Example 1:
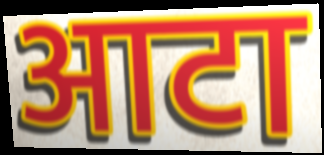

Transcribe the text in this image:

आटा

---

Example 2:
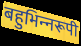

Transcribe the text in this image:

बहुभिन्नरूपी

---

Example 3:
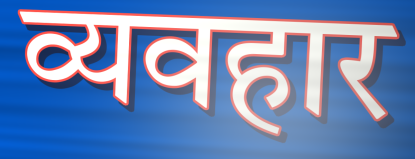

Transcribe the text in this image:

व्यवहार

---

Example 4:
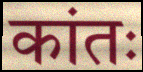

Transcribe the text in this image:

कांतः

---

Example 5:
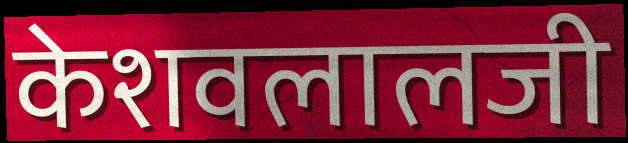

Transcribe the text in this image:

केशवलालजी